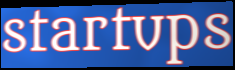
startups